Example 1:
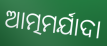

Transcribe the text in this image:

ଆତ୍ମମର୍ଯାଦା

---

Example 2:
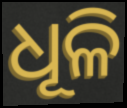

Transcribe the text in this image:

ଧୂଳି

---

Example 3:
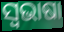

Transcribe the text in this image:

ସ୍ୱଭାଷା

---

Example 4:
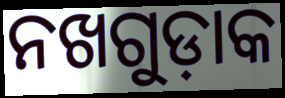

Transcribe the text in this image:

ନଖଗୁଡ଼ାକ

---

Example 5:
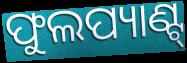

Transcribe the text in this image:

ଫୁଲପ୍ୟାଣ୍ଟ୍